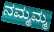
ನಮ್ಮಮ್ಮ